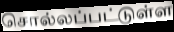
சொல்லப்பட்டுள்ள